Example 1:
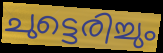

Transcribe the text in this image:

ചുട്ടെരിച്ചും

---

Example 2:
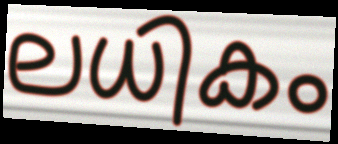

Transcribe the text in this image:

ലധികം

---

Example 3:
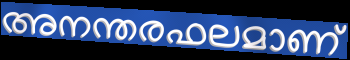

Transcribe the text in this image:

അനന്തരഫലമാണ്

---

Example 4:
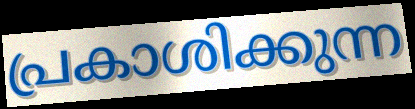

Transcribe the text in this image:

പ്രകാശിക്കുന്ന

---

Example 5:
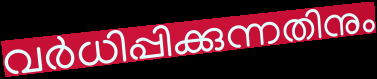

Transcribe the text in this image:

വർധിപ്പിക്കുന്നതിനും